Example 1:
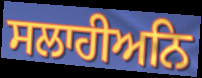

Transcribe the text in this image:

ਸਲਾਹੀਅਨਿ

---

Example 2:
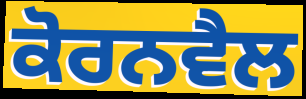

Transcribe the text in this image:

ਕੋਰਨਵੈਲ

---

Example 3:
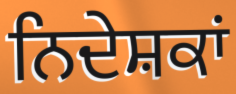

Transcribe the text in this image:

ਨਿਦੇਸ਼ਕਾਂ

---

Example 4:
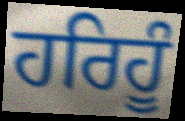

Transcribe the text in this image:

ਹਰਿਹੂੰ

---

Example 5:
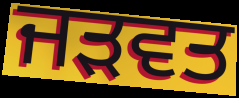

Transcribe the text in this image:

ਜੜਵਤ